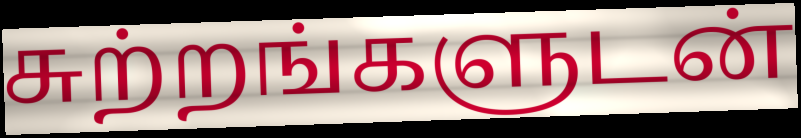
சுற்றங்களுடன்